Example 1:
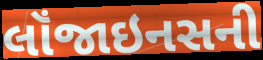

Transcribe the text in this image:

લૉંજાઇનસની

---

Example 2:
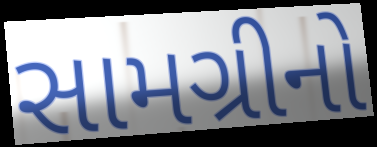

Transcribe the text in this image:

સામગ્રીનો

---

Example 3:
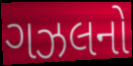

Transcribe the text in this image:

ગઝલનો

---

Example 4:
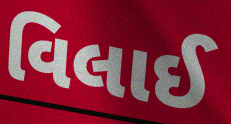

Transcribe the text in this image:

વિલાઈ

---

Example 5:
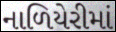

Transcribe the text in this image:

નાળિયેરીમાં